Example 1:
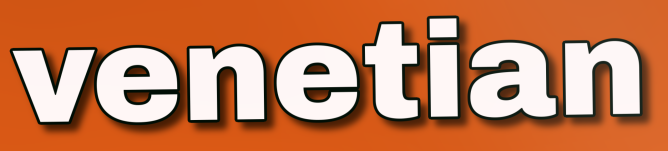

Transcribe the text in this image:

venetian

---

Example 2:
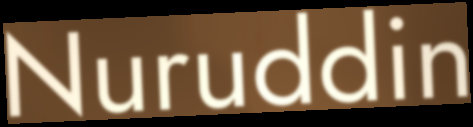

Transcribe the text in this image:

Nuruddin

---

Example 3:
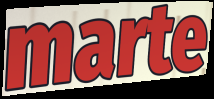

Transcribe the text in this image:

marte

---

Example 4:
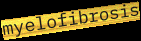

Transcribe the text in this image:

myelofibrosis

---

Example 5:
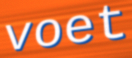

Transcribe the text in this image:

voet